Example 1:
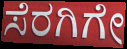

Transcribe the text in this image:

ಸೆರಗಿಗೇ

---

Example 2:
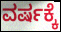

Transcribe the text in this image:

ವರ್ಷಕ್ಕೆ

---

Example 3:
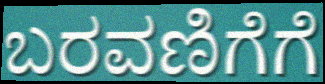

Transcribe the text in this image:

ಬರವಣಿಗೆಗೆ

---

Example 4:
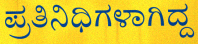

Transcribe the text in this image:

ಪ್ರತಿನಿಧಿಗಳಾಗಿದ್ದ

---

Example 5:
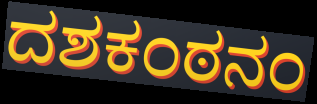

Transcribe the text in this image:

ದಶಕಂಠನಂ